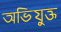
অভিযুক্ত